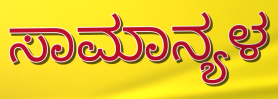
ಸಾಮಾನ್ಯಳ